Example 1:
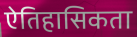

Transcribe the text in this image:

ऐतिहासिकता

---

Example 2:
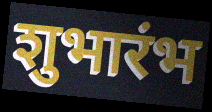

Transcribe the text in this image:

शुभारंभ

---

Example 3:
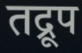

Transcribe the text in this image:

तद्रूप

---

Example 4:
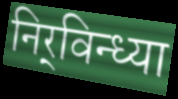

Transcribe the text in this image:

निर्विन्ध्या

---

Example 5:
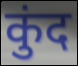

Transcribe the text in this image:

कुंद